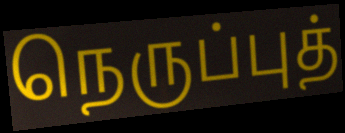
நெருப்புத்